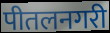
पीतलनगरी